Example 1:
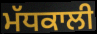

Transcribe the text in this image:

ਮੱਧਕਾਲੀ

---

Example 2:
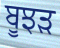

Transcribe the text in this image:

ਬੂਝੜ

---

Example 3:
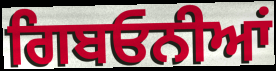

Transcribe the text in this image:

ਗਿਬਓਨੀਆਂ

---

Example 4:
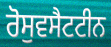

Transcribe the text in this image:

ਰੋਸੁਵਸੈਟਟੀਨ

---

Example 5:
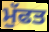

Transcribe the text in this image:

ਮੁੱਫਤ